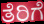
ತೆರಿಗೆ